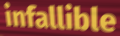
infallible